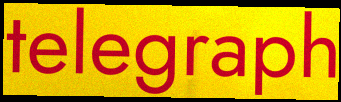
telegraph